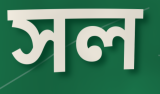
সল